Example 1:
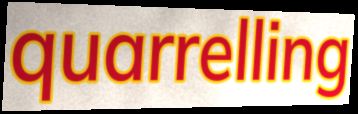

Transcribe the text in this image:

quarrelling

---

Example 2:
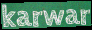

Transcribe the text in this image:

karwar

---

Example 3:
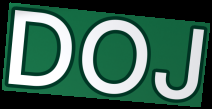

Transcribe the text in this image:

DOJ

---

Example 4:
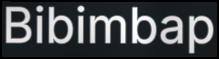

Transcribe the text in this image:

Bibimbap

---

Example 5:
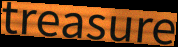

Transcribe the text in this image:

treasure